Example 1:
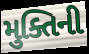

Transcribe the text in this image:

મુક્તિની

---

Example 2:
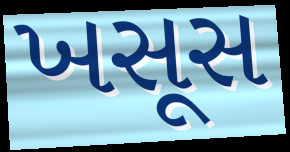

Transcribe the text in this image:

ખસૂસ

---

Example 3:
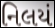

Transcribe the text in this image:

નિલયં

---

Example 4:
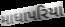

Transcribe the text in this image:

માધાપરિયા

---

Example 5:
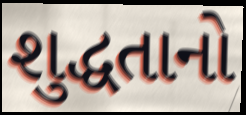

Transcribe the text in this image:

શુદ્ધતાનો